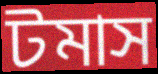
টমাস